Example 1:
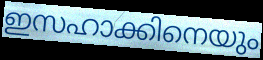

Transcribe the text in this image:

ഇസഹാക്കിനെയും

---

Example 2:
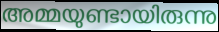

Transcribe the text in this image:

അമ്മയുണ്ടായിരുന്നു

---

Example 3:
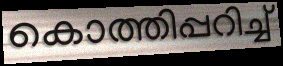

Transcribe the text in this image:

കൊത്തിപ്പറിച്ച്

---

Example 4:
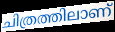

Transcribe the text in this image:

ചിത്രത്തിലാണ്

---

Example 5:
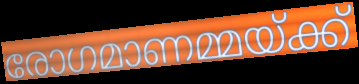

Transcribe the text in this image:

രോഗമാണമ്മയ്ക്ക്